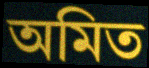
অমিত